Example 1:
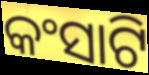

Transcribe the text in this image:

କଂସାଟି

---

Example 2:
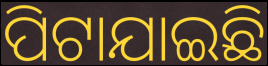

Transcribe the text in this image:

ପିଟାଯାଇଛି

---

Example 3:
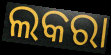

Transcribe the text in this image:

ଲକରା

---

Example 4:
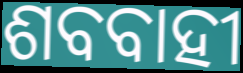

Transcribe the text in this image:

ଶବବାହୀ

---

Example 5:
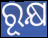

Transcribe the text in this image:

ରୂକ୍ଷ